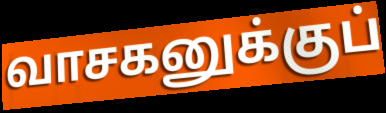
வாசகனுக்குப்